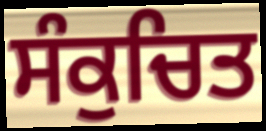
ਸੰਕੁਚਿਤ